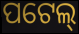
ପଟେଲ୍